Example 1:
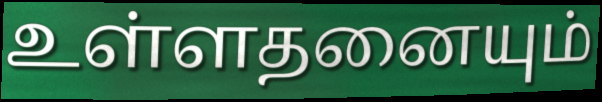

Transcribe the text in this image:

உள்ளதனையும்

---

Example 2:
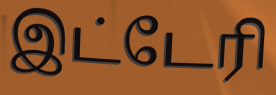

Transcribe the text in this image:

இட்டேரி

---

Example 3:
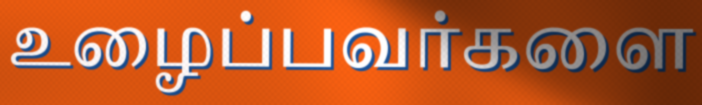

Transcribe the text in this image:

உழைப்பவர்களை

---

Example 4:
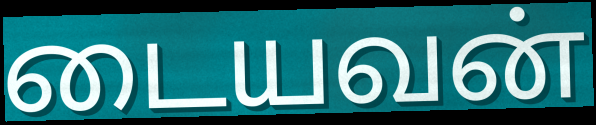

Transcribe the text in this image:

டையவன்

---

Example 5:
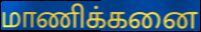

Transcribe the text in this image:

மாணிக்கனை